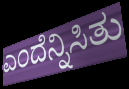
ಎಂದೆನ್ನಿಸಿತು